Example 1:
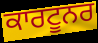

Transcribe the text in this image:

ਕਾਰਟੂਨਰ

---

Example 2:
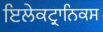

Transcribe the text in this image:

ਇਲੇਕਟ੍ਰਾਨਿਕਸ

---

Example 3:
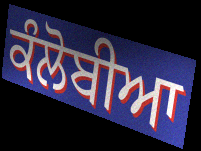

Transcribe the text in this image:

ਕੰਲੋਬੀਆ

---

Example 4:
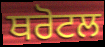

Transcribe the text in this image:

ਥਰੋਟਲ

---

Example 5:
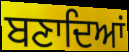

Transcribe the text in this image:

ਬਣਾਦਿਆਂ